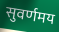
सुवर्णमय